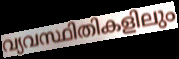
വ്യവസ്ഥിതികളിലും